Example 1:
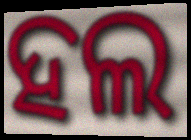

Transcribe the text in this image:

ହଲ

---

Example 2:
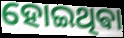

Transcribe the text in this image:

ହୋଇଥିଵା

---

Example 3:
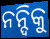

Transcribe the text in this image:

ନନ୍ଦିକୁ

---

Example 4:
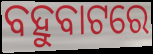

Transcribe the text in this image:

ବହୁବାଟରେ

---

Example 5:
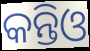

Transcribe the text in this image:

କନ୍ତିଓ